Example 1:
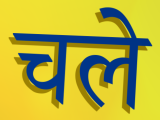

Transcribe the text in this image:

चले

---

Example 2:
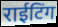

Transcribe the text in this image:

राईटिंग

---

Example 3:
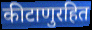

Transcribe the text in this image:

कीटाणुरहित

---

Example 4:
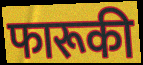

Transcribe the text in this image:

फारूकी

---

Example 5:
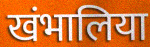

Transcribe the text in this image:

खंभालिया